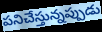
పనిచేస్తున్నప్పుడు